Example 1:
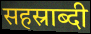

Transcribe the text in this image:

सहस्राब्दी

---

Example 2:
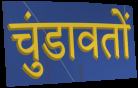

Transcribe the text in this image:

चुंडावतों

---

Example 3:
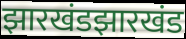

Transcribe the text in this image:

झारखंडझारखंड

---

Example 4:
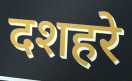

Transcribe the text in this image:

दशहरे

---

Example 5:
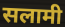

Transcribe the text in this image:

सलामी